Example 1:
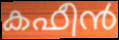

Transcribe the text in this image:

കഫീൻ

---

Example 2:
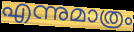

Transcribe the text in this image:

എന്നുമാത്രം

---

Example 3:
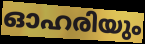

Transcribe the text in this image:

ഓഹരിയും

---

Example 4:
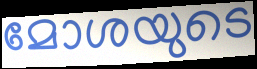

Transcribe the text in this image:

മോശയുടെ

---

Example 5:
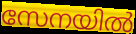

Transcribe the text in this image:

സേനയിൽ